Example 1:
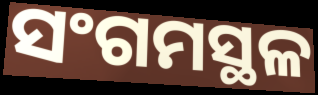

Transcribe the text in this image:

ସଂଗମସ୍ଥଳ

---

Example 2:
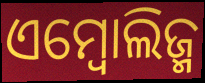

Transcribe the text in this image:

ଏମ୍ବୋଲିଜ୍ମ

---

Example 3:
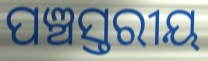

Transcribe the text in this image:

ପଞ୍ଚସ୍ତରୀୟ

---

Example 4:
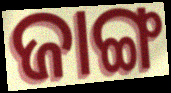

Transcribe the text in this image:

ଜାଙ୍ଗ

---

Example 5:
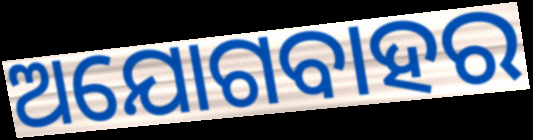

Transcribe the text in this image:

ଅଯୋଗବାହର